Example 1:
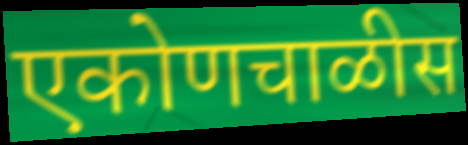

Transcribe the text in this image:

एकोणचाळीस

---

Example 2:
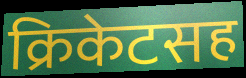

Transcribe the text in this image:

क्रिकेटसह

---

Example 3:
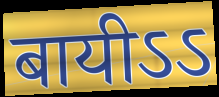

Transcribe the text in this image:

बायीऽऽ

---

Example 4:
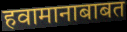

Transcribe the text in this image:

हवामानाबाबत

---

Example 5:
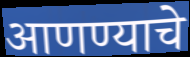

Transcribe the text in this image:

आणण्याचे